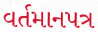
વર્તમાનપત્ર